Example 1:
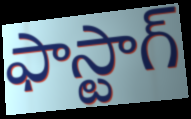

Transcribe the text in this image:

ఫాస్టాగ్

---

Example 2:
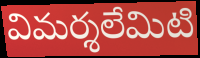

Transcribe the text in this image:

విమర్శలేమిటి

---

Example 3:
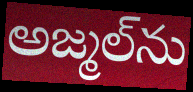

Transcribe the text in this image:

అజ్మల్‌ను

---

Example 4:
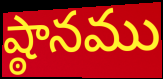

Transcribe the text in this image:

ష్ఠానము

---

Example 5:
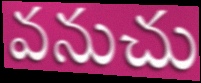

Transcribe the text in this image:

వనుచు